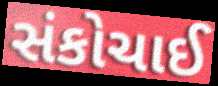
સંકોચાઈ